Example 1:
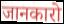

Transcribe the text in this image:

जानकारो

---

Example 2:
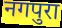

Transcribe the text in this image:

नगपुरा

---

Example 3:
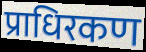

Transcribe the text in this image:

प्राधिरकण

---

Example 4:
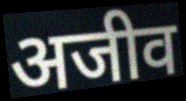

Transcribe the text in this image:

अजीव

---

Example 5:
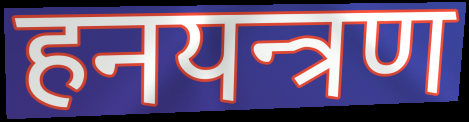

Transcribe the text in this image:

हनयन्त्रण